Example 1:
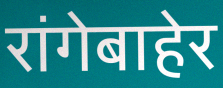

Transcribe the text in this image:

रांगेबाहेर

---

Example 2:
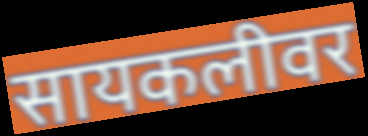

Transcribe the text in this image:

सायकलीवर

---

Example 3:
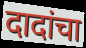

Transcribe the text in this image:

दादांचा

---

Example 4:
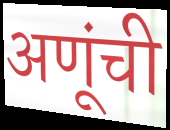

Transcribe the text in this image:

अणूंची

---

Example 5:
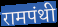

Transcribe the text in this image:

रामपंथी